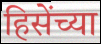
हिसेंच्या